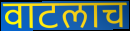
वाटलाच